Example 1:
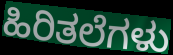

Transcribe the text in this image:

ಹಿರಿತಲೆಗಳು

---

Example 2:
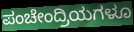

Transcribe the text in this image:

ಪಂಚೇಂದ್ರಿಯಗಳೂ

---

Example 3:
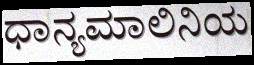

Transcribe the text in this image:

ಧಾನ್ಯಮಾಲಿನಿಯ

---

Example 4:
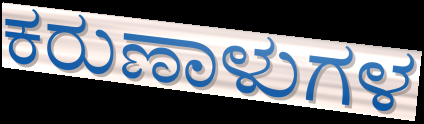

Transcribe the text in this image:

ಕರುಣಾಳುಗಳ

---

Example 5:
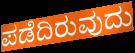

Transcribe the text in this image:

ಪಡೆದಿರುವುದು